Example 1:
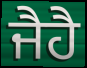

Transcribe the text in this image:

ਜੈਹੈ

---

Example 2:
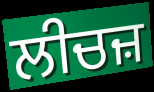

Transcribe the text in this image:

ਲੀਚਜ਼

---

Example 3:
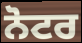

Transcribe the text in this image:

ਨੋਟਰ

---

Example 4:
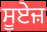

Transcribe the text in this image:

ਸੂਏਜ਼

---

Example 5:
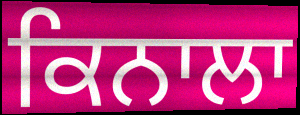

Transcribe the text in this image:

ਕਿਨਾਲਾ